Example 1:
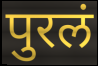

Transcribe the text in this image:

पुरलं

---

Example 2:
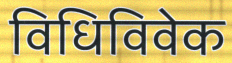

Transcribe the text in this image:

विधिविवेक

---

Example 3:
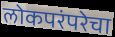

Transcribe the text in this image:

लोकपरंपरेचा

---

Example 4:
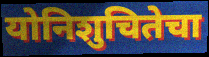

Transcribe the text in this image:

योनिशुचितेचा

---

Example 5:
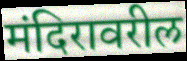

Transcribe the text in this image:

मंदिरावरील